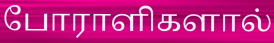
போராளிகளால்